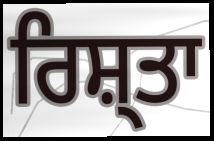
ਰਿਸ਼੍ਤਾ